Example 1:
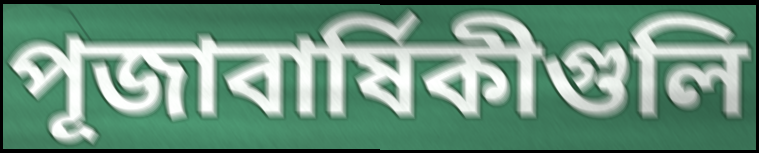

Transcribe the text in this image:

পূজাবার্ষিকীগুলি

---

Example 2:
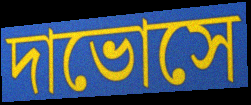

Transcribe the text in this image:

দাভোসে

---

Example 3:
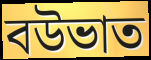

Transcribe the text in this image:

বউভাত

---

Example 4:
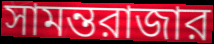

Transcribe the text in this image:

সামন্তরাজার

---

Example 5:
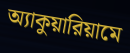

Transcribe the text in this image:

অ্যাকুয়ারিয়ামে